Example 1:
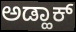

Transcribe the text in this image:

ಅಡ್ಹಾಕ್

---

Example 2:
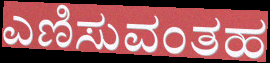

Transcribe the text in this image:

ಎಣಿಸುವಂತಹ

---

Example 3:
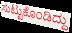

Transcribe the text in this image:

ಸುಟ್ಟುಕೊಂಡಿದ್ದು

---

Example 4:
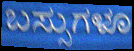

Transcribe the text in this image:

ಬಸ್ಸುಗಳೂ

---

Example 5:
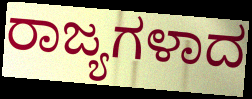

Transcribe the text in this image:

ರಾಜ್ಯಗಳಾದ